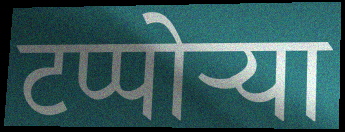
टप्पोऱ्या